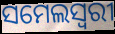
ସମେଲସ୍ୱରୀ